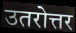
उतरोत्तर